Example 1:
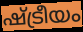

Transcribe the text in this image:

ഷ്ട്രീയം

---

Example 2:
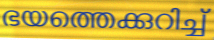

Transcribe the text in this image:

ഭയത്തെക്കുറിച്ച്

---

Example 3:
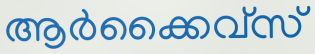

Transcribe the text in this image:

ആർക്കൈവ്സ്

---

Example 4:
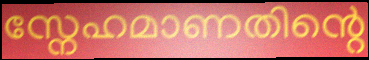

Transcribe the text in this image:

സ്നേഹമാണതിന്റെ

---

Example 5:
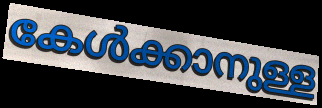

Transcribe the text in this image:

കേൾക്കാനുള്ള